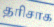
தரிசாக